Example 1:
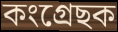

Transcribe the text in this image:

কংগ্ৰেছক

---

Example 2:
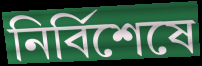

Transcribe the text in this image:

নিৰ্বিশেষে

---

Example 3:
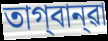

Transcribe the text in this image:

তাগ্‌বান্‌ৱা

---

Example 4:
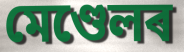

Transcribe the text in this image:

মেণ্ডেলৰ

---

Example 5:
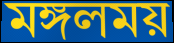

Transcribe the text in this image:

মঙ্গলময়